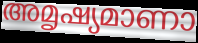
അമൃഷ്യമാണാ